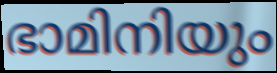
ഭാമിനിയും